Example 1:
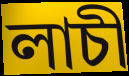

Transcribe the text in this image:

লাচী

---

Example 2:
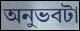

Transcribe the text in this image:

অনুভবটা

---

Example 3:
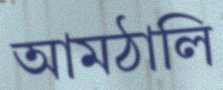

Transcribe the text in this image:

আমঠালি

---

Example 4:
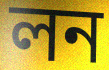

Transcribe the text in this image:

লন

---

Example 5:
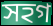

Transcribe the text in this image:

সহগ